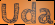
Uda